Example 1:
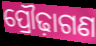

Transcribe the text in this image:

ପ୍ରୌଢ଼ାଗଣ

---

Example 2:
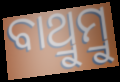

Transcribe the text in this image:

ବାଥ୍ରୁମ୍ରୁ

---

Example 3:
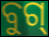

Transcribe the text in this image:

ବୁଗ୍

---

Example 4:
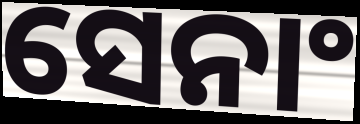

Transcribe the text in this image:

ସେନାଂ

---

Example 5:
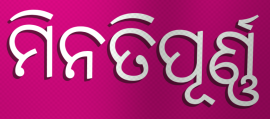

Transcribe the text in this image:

ମିନତିପୂର୍ଣ୍ଣ